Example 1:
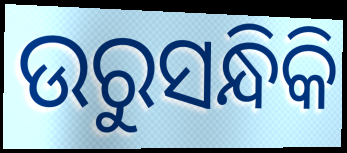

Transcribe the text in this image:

ଉରୁସନ୍ଧିକି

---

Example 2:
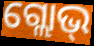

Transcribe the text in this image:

ଗ୍ଲୋଭ୍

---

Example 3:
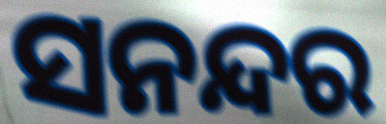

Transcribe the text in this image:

ସନନ୍ଦର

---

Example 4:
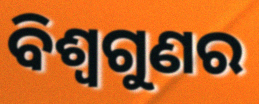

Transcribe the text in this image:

ବିଶ୍ୱଗୁଣର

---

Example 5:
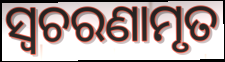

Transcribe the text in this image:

ସ୍ଵଚରଣାମୃତ